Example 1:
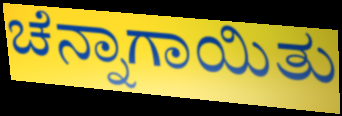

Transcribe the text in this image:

ಚೆನ್ನಾಗಾಯಿತು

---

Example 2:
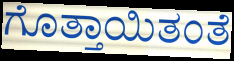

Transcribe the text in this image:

ಗೊತ್ತಾಯಿತಂತೆ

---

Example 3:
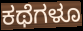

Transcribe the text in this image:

ಕಥೆಗಳೂ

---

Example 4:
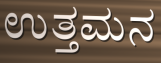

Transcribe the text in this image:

ಉತ್ತಮನ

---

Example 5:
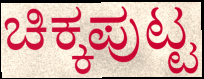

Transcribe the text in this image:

ಚಿಕ್ಕಪುಟ್ಟ